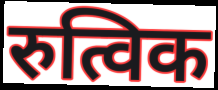
रुत्विक